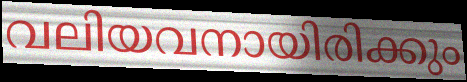
വലിയവനായിരിക്കും